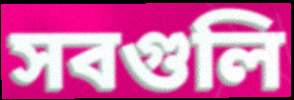
সবগুলি